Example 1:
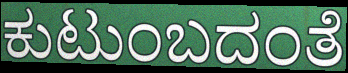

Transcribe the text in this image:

ಕುಟುಂಬದಂತೆ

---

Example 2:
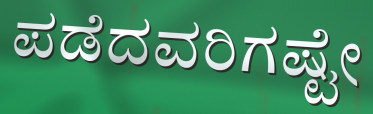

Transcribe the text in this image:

ಪಡೆದವರಿಗಷ್ಟೇ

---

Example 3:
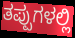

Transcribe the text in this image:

ತಪ್ಪುಗಳಲ್ಲಿ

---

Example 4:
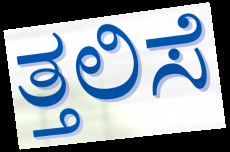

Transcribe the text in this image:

ತ್ತಲಿಸೆ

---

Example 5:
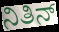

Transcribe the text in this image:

ನಿತಿನ್